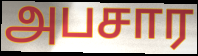
அபசார